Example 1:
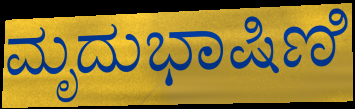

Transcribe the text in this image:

ಮೃದುಭಾಷಿಣಿ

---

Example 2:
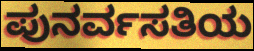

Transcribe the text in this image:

ಪುನರ್ವಸತಿಯ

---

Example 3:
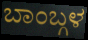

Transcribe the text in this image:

ಬಾಂಬ್ಗಳ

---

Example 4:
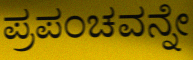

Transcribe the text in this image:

ಪ್ರಪಂಚವನ್ನೇ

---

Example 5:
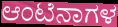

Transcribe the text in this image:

ಆಂಟೆನಾಗಳ